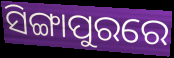
ସିଙ୍ଗାପୁରରେ